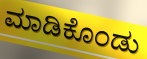
ಮಾಡಿಕೊಂಡು